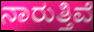
ನಾರುತ್ತಿವೆ